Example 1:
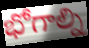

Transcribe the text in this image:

భోగాల్ని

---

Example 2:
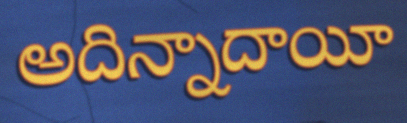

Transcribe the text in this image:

అదిన్నాదాయీ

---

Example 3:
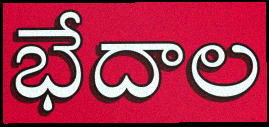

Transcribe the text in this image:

భేదాల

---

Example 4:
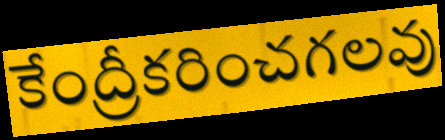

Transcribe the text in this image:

కేంద్రీకరించగలవు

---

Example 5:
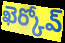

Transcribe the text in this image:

ఖెర్కోవ్